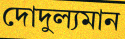
দোদুল্যমান